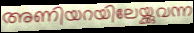
അണിയറയിലേയ്ക്കുവന്ന